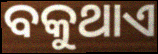
ବକୁଥାଏ